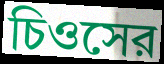
চিওসের